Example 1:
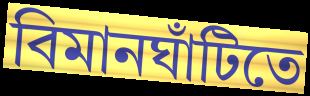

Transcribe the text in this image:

বিমানঘাঁটিতে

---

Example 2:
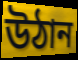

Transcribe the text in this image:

উঠান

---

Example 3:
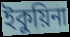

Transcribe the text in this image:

ইকুয়িনা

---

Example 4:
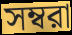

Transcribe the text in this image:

সম্বরা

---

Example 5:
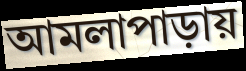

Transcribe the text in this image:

আমলাপাড়ায়